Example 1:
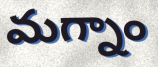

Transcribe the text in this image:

మగ్నాం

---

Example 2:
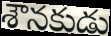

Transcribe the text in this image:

శౌనకుడు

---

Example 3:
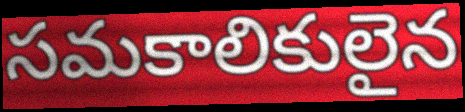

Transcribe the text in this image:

సమకాలికులైన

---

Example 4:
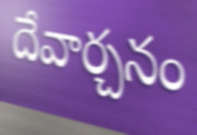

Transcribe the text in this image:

దేవార్చనం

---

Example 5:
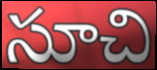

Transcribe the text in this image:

సూచి